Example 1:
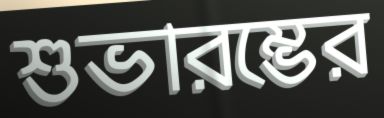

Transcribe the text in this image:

শুভারম্ভের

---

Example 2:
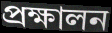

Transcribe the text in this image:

প্রক্ষালন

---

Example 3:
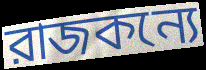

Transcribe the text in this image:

রাজকন্যে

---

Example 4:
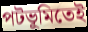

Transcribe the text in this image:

পটভূমিতেই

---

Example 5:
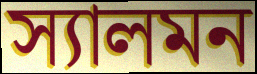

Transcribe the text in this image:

স্যালমন